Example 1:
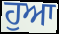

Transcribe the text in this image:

ਹੁਆ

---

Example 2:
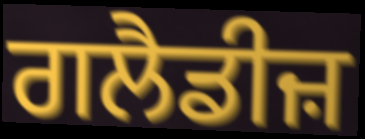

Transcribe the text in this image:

ਗਲੈਡੀਜ਼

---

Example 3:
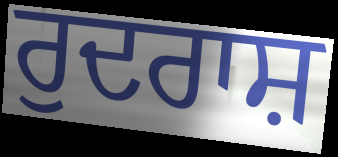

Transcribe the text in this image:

ਰੁਦਰਾਸ਼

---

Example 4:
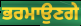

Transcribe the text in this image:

ਭਰਮਾਉਣਗੇ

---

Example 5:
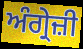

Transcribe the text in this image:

ਅੰਗ੍ਰੇਜ਼ੀ